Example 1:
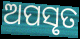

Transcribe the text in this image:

ଅପସୃତ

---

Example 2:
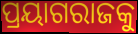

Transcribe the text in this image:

ପ୍ରୟାଗରାଜକୁ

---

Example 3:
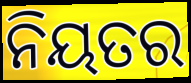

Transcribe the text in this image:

ନିୟତର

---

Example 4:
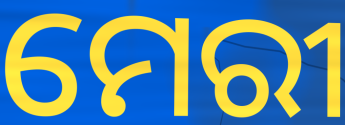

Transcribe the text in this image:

ମେରୀ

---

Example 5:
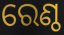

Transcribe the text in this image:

ରେଣ୍ଠ